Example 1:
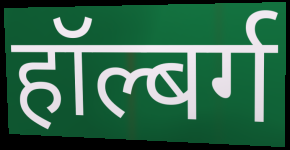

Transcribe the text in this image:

हॉल्बर्ग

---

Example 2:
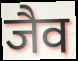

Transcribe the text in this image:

जैव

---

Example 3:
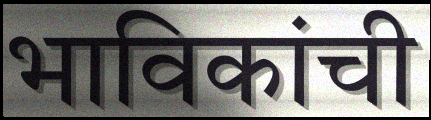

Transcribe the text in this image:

भाविकांची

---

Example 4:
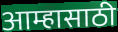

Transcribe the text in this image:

आम्हासाठी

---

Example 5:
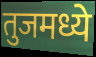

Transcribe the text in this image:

तुजमध्ये